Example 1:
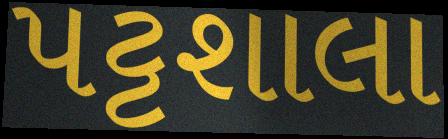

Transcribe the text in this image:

પટ્ટશાલા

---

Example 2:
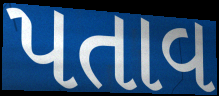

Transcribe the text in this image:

પતાવ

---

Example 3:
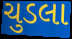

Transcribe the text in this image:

ચુડલા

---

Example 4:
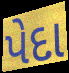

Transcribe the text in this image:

પેદા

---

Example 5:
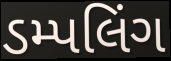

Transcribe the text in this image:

ડમ્પલિંગ